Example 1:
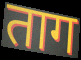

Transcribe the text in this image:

ताग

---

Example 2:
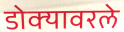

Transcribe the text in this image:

डोक्यावरले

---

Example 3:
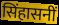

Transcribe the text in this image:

सिंहासनीं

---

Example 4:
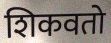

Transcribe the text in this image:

शिकवतो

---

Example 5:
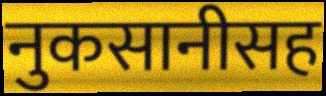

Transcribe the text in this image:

नुकसानीसह